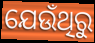
ଯେଉଁଥିରୁ